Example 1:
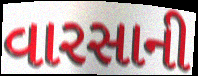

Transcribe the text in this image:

વારસાની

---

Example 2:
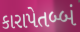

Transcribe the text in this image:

કારાપેતબ્બં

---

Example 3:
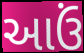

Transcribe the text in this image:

આઉં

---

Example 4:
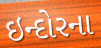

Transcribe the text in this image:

ઇન્દોરના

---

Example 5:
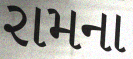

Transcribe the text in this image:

રામના